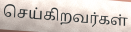
செய்கிறவர்கள்